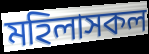
মহিলাসকল